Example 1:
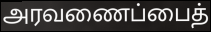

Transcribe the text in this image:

அரவணைப்பைத்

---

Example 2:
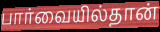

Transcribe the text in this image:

பார்வையில்தான்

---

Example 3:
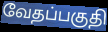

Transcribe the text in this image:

வேதப்பகுதி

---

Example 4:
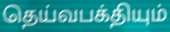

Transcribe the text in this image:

தெய்வபக்தியும்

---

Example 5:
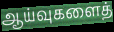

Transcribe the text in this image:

ஆய்வுகளைத்